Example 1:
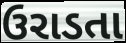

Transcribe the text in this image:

ઉરાડતા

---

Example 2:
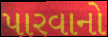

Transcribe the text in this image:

પારવાનો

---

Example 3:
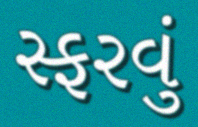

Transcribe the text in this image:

સ્ફરવું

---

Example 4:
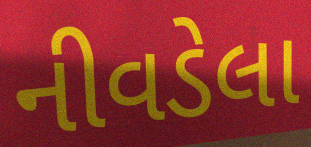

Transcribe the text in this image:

નીવડેલા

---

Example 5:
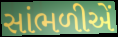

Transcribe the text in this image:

સાંભળીએં